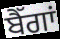
ਬੈੱਗਾਂ